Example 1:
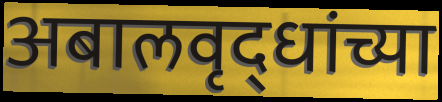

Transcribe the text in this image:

अबालवृद्धांच्या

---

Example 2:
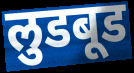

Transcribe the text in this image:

लुडबूड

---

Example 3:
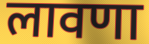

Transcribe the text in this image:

लावणा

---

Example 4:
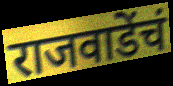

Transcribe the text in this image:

राजवाडेंचं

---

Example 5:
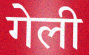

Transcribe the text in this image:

गेली